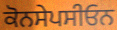
ਕੋਨਸੇਪਸੀਓਨ